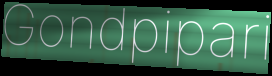
Gondpipari